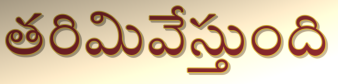
తరిమివేస్తుంది